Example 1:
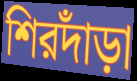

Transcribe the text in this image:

শিরদাঁড়া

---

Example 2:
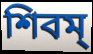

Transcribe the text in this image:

শিবম্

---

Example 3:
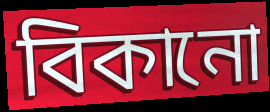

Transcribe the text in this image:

বিকানো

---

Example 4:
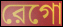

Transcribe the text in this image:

রেগো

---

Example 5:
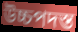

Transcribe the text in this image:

উচ্চপদস্ত